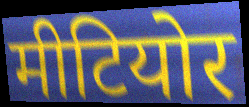
मीटियोर